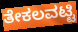
ತೇಕಲವಟ್ಟಿ